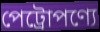
পেট্রোপণ্যে